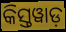
କିସ୍ତୱାଡ଼